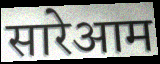
सारेआम